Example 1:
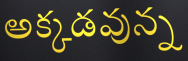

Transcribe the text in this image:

అక్కడవున్న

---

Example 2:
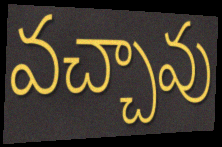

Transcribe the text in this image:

వచ్చావు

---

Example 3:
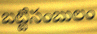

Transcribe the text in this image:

బట్టిసంబులం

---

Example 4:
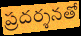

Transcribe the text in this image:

ప్రదర్శనతో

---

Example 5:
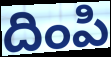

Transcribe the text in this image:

దింపి